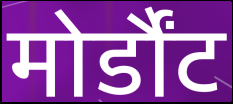
मोर्डौंट